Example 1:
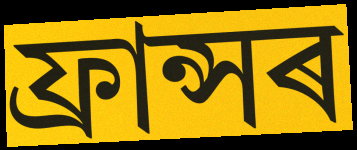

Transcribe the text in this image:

ফ্ৰান্সৰ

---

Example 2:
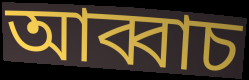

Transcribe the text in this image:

আব্বাচ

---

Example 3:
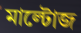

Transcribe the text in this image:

মাল্টোজ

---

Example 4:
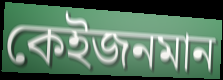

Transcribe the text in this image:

কেইজনমান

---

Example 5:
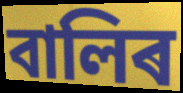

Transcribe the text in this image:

বালিৰ